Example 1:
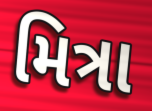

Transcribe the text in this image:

મિત્રા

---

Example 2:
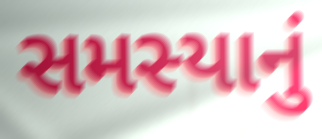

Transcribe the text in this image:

સમસ્યાનું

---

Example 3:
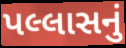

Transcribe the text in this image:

પલ્લાસનું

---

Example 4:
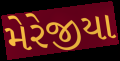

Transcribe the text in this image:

મેરેજીયા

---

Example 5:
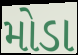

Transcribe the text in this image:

મોડા